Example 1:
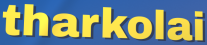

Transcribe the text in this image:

tharkolai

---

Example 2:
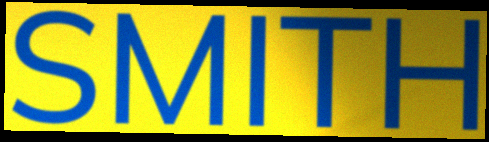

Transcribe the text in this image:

SMITH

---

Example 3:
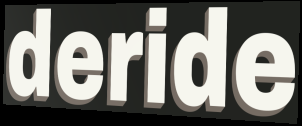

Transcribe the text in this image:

deride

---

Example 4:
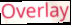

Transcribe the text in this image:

Overlay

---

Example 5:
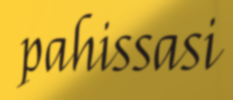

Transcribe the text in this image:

pahissasi